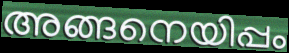
അങ്ങനെയിപ്പം